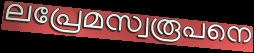
ലപ്രേമസ്വരൂപനെ